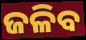
ଜଳିବ